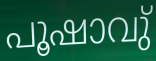
പൂഷാവു്